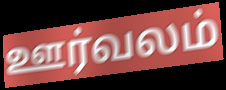
ஊர்வலம்